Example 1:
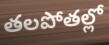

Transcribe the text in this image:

తలపోతల్లో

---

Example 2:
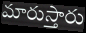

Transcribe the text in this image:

మారుస్తారు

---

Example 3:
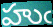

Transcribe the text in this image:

హుఁ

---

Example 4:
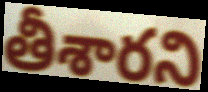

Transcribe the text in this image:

తీశారని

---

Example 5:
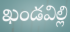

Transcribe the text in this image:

ఖండవిల్లి